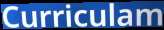
Curriculam